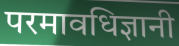
परमावधिज्ञानी